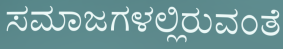
ಸಮಾಜಗಳಲ್ಲಿರುವಂತೆ